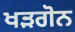
ਖੜਗੋਨ